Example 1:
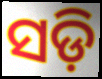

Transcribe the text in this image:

ସଡ଼ି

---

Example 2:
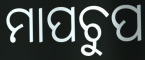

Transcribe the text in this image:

ମାପଚୁପ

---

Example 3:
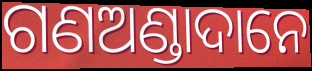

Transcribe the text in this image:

ଗଣଅଣ୍ଡାଦାନେ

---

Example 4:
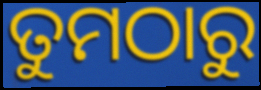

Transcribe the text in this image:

ତୁମଠାରୁ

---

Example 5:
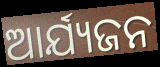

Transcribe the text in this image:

ଆର୍ଯ୍ୟଜନ